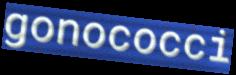
gonococci